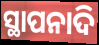
ସ୍ଥାପନାଦି